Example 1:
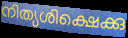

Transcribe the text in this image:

നിത്യശിക്ഷെക്കു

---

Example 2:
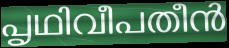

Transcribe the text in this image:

പൃഥിവീപതീൻ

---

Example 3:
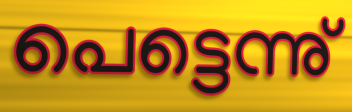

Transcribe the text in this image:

പെട്ടെന്നു്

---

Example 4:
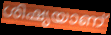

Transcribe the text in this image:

ശിഷ്യയാണ്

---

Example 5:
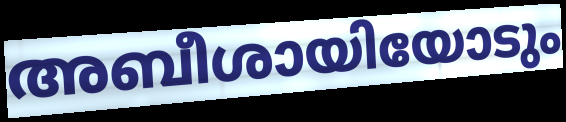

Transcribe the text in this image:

അബീശായിയോടും